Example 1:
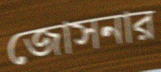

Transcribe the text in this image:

জোসনার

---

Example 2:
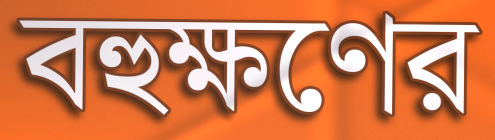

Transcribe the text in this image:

বহুক্ষণের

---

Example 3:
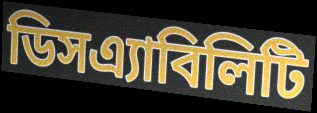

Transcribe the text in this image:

ডিসএ্যাবিলিটি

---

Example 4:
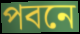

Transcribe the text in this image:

পবনে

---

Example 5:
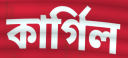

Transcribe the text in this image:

কার্গিল